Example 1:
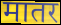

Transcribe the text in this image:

मातर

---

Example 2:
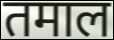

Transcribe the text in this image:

तमाल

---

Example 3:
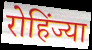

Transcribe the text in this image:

रोहिंज्या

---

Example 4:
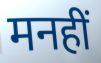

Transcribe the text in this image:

मनहीं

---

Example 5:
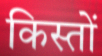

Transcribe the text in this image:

किस्तों